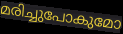
മരിച്ചുപോകുമോ